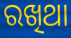
ରଖିଥା